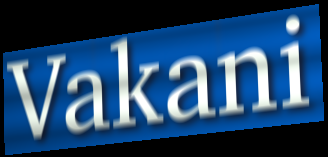
Vakani